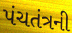
પંચતંત્રની